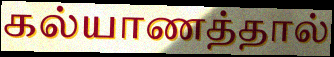
கல்யாணத்தால்